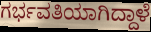
ಗರ್ಭವತಿಯಾಗಿದ್ದಾಳೆ